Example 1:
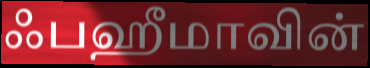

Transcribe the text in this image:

ஃபஹீமாவின்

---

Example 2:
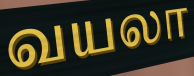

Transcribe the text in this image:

வயலா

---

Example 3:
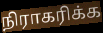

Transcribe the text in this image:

நிராகரிக்க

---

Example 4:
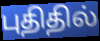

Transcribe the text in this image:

புதிதில்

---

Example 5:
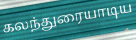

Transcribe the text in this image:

கலந்துரையாடிய